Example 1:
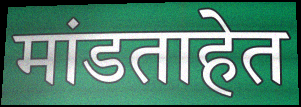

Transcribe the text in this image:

मांडताहेत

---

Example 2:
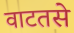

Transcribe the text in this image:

वाटतसे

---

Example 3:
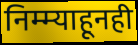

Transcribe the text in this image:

निम्म्याहूनही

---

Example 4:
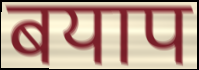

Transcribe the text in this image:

बयाप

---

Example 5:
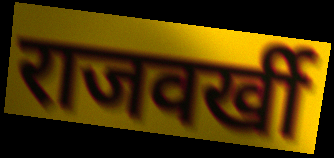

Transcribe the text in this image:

राजवर्खी